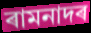
ৰামনাদৰ